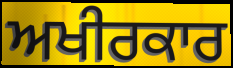
ਅਖੀਰਕਾਰ